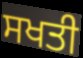
ਸਖਤੀ